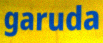
garuda